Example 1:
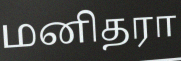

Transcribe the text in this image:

மனிதரா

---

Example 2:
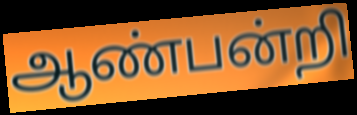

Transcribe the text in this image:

ஆண்பன்றி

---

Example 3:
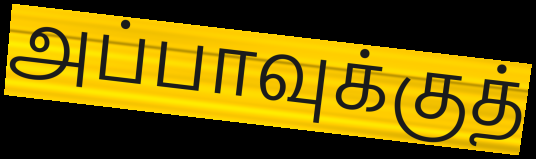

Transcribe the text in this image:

அப்பாவுக்குத்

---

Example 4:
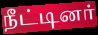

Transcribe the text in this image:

நீட்டினர்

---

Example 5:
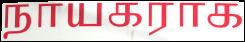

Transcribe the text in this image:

நாயகராக